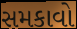
સમકાવો